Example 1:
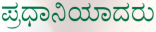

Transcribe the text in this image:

ಪ್ರಧಾನಿಯಾದರು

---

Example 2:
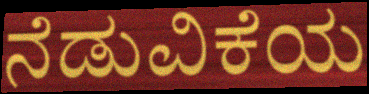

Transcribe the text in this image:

ನೆಡುವಿಕೆಯ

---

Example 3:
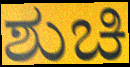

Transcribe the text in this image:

ಶುಚಿ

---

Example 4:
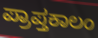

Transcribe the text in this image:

ಪ್ರಾಪ್ತಕಾಲಂ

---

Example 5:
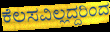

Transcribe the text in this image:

ಕೆಲಸವಿಲ್ಲದ್ದರಿಂದ